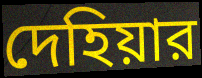
দেহিয়ার